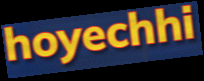
hoyechhi